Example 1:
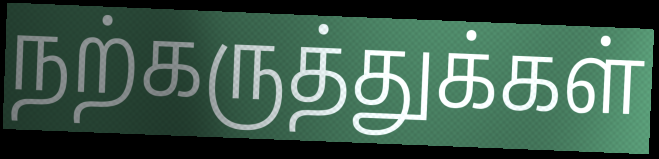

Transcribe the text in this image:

நற்கருத்துக்கள்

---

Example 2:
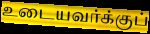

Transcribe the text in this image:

உடையவர்க்குப்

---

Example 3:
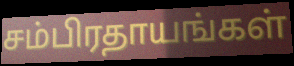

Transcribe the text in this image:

சம்பிரதாயங்கள்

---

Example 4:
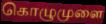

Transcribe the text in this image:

கொழுமுளை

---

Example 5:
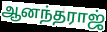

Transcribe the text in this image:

ஆனந்தராஜ்